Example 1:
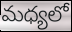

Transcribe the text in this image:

మధ్యలో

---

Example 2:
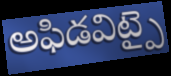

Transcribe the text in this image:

అఫిడవిట్పై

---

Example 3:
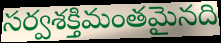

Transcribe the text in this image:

సర్వశక్తిమంతమైనది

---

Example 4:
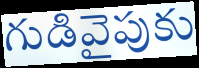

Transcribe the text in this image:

గుడివైపుకు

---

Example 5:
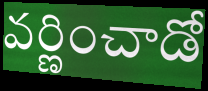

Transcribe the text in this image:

వర్ణించాడో